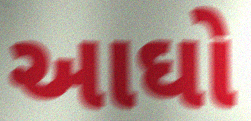
આઘો